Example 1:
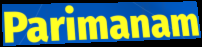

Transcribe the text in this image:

Parimanam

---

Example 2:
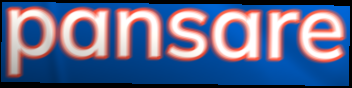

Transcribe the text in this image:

pansare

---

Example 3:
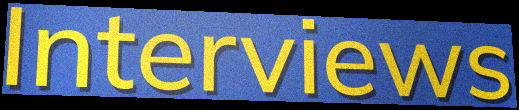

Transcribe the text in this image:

Interviews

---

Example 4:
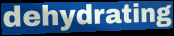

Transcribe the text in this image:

dehydrating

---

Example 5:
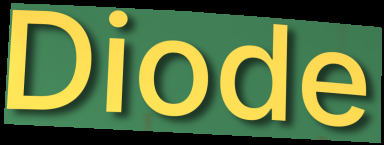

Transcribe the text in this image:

Diode